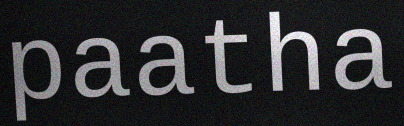
paatha